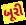
બૂરી